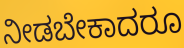
ನೀಡಬೇಕಾದರೂ